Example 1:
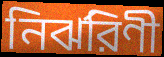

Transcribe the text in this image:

নির্ঝরিণী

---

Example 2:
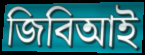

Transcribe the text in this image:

জিবিআই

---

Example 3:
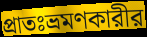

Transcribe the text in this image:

প্রাতঃভ্রমণকারীর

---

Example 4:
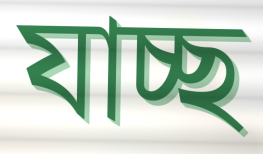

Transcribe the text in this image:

যাচ্ছ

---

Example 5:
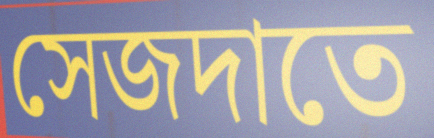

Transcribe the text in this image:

সেজদাতে